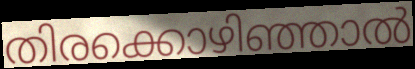
തിരക്കൊഴിഞ്ഞാൽ